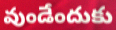
వుండేందుకు